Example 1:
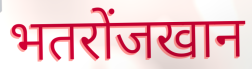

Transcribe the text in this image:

भतरोंजखान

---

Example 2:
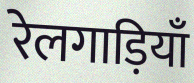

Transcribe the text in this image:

रेलगाड़ियाँ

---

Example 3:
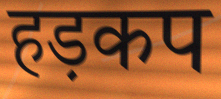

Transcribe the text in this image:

हड़कप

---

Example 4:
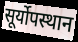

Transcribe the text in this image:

सूर्योपस्थान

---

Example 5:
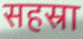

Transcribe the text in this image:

सहस्रा